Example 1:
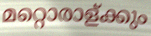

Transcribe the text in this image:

മറ്റൊരാള്ക്കും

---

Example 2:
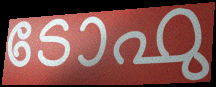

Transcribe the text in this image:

ടോഫു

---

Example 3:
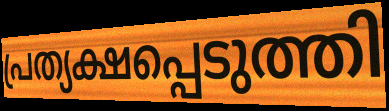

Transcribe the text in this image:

പ്രത്യക്ഷപ്പെടുത്തി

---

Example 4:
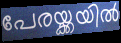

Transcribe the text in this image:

പേരയ്ക്കയിൽ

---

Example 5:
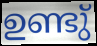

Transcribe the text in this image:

ഉണ്ടു്